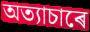
অত্যাচাৰে